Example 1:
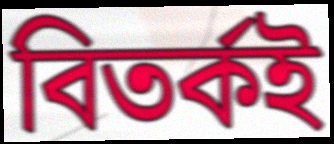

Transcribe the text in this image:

বিতৰ্কই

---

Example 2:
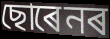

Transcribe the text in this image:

ছোৰেনৰ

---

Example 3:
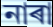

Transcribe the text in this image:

নাৰা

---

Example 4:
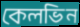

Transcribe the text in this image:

কেলভিন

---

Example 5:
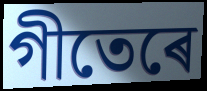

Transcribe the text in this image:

গীতেৰে